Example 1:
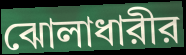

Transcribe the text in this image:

ঝোলাধারীর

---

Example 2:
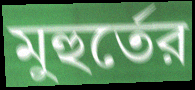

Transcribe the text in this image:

মুহুর্তের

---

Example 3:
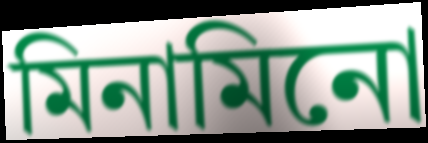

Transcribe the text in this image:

মিনামিনো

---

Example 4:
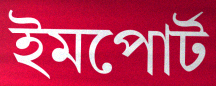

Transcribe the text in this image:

ইমপোর্ট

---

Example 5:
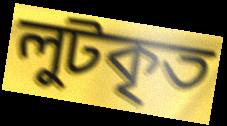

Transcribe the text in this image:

লুটকৃত